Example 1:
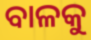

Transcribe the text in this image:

ବାଳକୁ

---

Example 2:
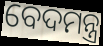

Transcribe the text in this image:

ବେଦମନ୍ତ୍ର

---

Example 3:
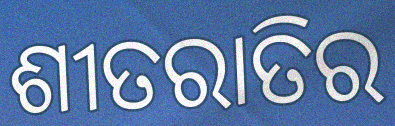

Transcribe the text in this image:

ଶୀତରାତିର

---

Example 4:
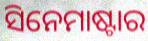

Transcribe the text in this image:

ସିନେମାଷ୍ଟାର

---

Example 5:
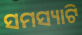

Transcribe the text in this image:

ସମସ୍ୟାଟି